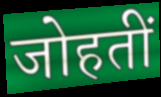
जोहतीं